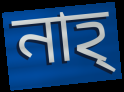
নাহ্